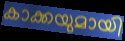
കാക്കയുമായി